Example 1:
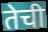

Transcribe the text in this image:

तेची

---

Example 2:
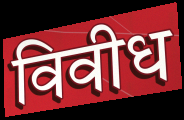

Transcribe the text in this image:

विवीध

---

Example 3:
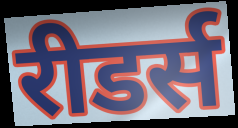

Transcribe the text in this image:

रीडर्स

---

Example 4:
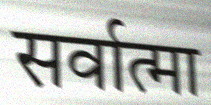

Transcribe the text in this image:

सर्वात्मा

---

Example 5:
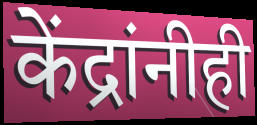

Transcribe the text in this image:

केंद्रांनीही